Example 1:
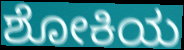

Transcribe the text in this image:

ಶೋಕಿಯ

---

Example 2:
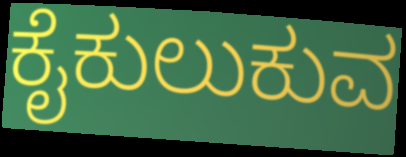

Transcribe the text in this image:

ಕೈಕುಲುಕುವ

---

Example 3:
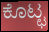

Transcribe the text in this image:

ಕೊಟ್ಟ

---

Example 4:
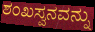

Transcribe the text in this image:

ಶಂಖಸ್ವನವನ್ನು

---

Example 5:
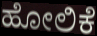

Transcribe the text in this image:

ಹೋಲಿಕೆ